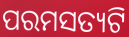
ପରମସତ୍ୟଟି